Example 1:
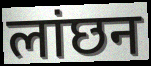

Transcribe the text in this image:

लांछन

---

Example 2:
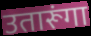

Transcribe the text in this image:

उतारूंगा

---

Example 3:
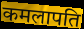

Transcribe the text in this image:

कमलापति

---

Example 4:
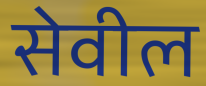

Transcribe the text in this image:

सेवील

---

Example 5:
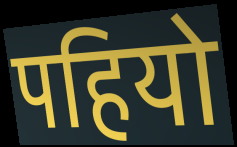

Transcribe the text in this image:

पहियो